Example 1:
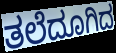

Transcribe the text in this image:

ತಲೆದೂಗಿದ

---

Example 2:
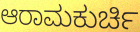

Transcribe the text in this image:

ಆರಾಮಕುರ್ಚಿ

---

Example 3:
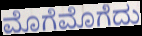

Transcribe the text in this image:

ಮೊಗೆಮೊಗೆದು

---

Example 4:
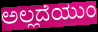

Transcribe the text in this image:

ಅಲ್ಲದೆಯುಂ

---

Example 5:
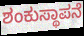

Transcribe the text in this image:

ಶಂಕುಸ್ಥಾಪನೆ